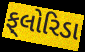
ફ્‌લોરિડા